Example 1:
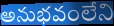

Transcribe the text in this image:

అనుభవంలేని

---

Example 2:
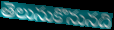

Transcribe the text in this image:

తెలుసుకొనునది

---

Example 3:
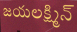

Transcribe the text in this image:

జయలక్ష్మిన్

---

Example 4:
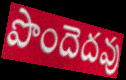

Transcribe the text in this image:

పొందెదవు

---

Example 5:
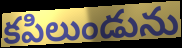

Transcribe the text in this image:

కపిలుండును